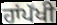
ਹਾਂਪੱਖੀ